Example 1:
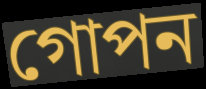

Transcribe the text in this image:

গোপন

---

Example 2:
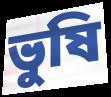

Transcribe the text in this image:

ভুষি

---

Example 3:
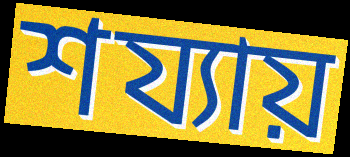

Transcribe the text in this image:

শয্যায়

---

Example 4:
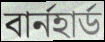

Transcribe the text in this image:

বার্নহার্ড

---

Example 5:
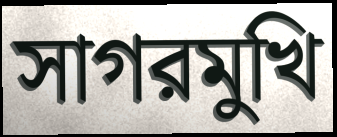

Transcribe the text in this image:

সাগরমুখি